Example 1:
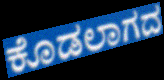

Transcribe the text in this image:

ಕೊಡಲಾಗದ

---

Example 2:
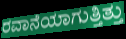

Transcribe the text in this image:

ರವಾನೆಯಾಗುತ್ತಿತ್ತು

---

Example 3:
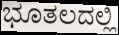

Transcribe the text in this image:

ಭೂತಲದಲ್ಲಿ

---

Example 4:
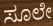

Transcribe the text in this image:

ಸೂಲೇ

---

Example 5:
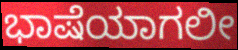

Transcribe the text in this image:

ಭಾಷೆಯಾಗಲೀ